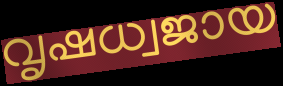
വൃഷധ്വജായ